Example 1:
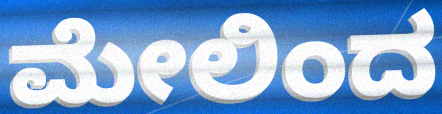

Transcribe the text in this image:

ಮೇಲಿಂದ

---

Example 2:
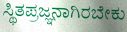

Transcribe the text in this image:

ಸ್ಥಿತಪ್ರಜ್ಞನಾಗಿರಬೇಕು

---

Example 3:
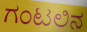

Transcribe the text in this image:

ಗಂಟಲಿನ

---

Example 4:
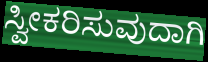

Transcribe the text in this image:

ಸ್ವೀಕರಿಸುವುದಾಗಿ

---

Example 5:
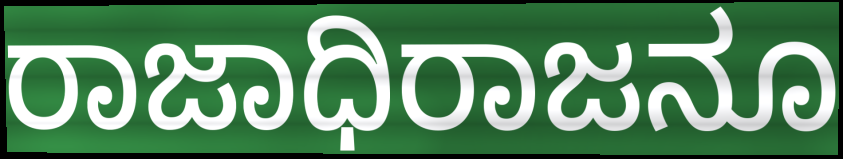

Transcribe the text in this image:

ರಾಜಾಧಿರಾಜನೂ